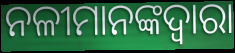
ନଳୀମାନଙ୍କଦ୍ୱାରା